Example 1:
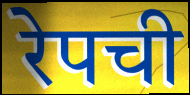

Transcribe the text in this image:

रेपची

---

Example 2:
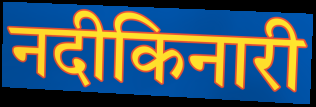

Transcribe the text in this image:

नदीकिनारी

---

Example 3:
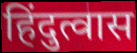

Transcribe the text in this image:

हिंदुत्वास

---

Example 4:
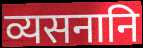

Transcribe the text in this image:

व्यसनानि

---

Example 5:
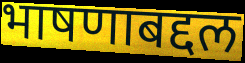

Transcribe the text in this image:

भाषणाबद्दल